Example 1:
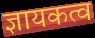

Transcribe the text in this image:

ज्ञायकत्व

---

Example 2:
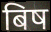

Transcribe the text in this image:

बिष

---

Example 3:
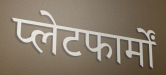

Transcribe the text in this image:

प्लेटफार्मों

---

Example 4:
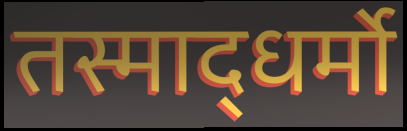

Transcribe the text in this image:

तस्माद्धर्मो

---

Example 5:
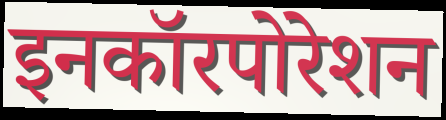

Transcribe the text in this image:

इनकॉरपोरेशन